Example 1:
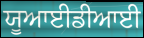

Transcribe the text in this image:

ਯੂਆਈਡੀਆਈ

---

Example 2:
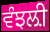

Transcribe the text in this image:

ਵੰਝਲ਼ੀ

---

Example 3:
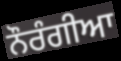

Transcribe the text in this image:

ਨੌਰੰਗੀਆ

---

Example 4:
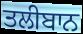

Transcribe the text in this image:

ਤਲੀਬਾਨ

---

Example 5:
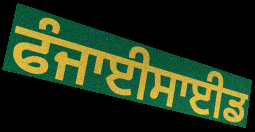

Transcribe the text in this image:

ਫੰਜਾਈਸਾਈਡ